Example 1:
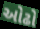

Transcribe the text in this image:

ઓઢો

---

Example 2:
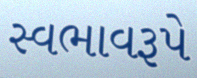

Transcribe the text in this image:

સ્વભાવરૂપે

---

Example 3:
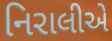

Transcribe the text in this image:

નિરાલીએ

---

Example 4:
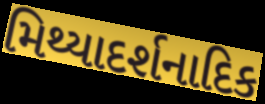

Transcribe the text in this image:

મિથ્યાદર્શનાદિક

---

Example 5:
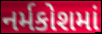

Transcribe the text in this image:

નર્મકોશમાં